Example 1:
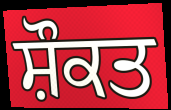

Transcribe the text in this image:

ਸ਼ੌਕਤ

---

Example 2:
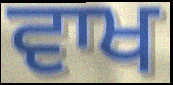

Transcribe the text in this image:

ਵਾਖ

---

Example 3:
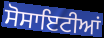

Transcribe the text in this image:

ਸੋਸਾਇਟੀਆਂ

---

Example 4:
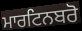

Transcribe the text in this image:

ਮਾਰਟਿਨਬਰੋ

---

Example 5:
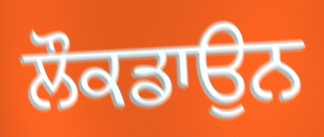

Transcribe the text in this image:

ਲੌਕਡਾਉਨ